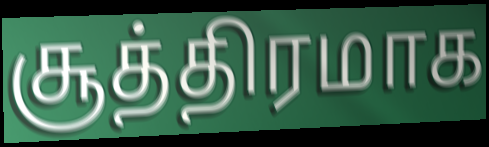
சூத்திரமாக